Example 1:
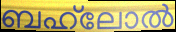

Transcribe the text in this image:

ബഹ്‌ലോൽ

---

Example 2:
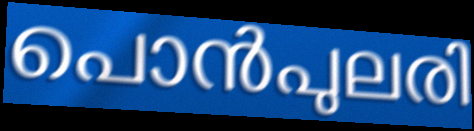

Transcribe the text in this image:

പൊൻപുലരി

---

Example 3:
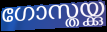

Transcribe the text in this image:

ഗോസ്തയ്ക്കു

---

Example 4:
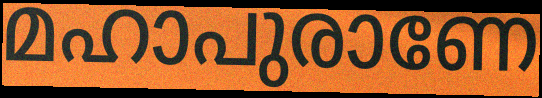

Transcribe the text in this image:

മഹാപുരാണേ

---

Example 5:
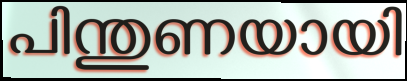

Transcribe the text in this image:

പിന്തുണയായി